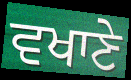
ਵਖਾਣੇ